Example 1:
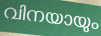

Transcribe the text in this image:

വിനയായും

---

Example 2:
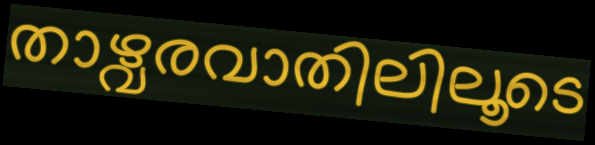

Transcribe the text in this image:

താഴ്വരവാതിലിലൂടെ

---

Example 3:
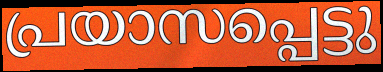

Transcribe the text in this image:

പ്രയാസപ്പെട്ടു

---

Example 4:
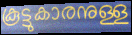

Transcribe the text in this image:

കൂട്ടുകാരനുള്ള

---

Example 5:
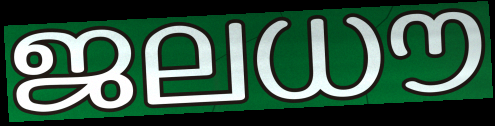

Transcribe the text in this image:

ജലധൗ